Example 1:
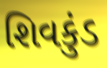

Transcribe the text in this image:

શિવકુંડ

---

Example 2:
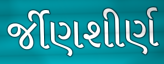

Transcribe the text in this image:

ર્જીણશીર્ણ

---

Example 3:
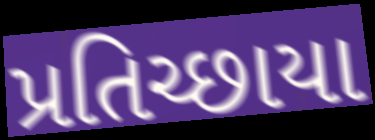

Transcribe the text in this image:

પ્રતિચ્છાયા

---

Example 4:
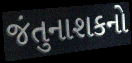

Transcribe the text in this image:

જંતુનાશકનો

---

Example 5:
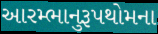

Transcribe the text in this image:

આરમ્ભાનુરૂપથોમના